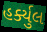
હર્ક્યુલ